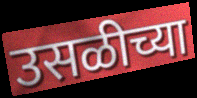
उसळीच्या